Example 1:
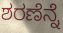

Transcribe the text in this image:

ಶರಣೆನ್ನೆ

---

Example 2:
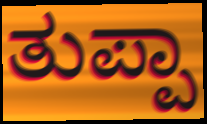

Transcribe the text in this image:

ತುಪ್ಪಾ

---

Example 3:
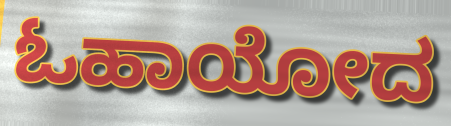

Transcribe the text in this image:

ಓಹಾಯೋದ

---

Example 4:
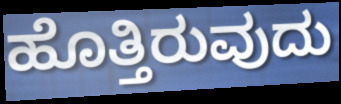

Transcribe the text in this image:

ಹೊತ್ತಿರುವುದು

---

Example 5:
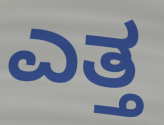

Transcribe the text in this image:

ಎತ್ತ